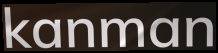
kanman